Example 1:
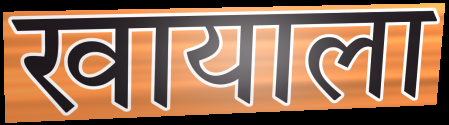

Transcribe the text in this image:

खायाला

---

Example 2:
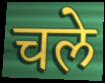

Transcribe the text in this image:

चले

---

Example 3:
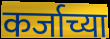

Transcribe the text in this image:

कर्जाच्या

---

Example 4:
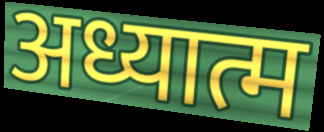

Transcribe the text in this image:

अध्यात्म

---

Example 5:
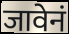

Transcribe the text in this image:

जावेनं